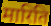
मारिति